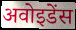
अवोइडेंस